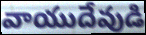
వాయుదేవుడి